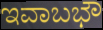
ಇವಾಬಭೌ